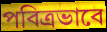
পবিত্রভাবে